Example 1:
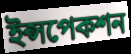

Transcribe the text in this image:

ইন্সপেকশন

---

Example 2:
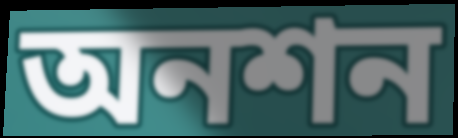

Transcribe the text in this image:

অনশন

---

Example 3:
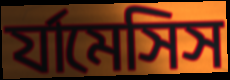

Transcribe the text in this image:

র্যামেসিস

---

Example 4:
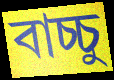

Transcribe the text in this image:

বাচ্চু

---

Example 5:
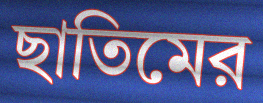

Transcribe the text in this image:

ছাতিমের